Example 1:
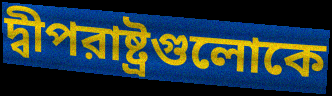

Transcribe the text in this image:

দ্বীপরাষ্ট্রগুলোকে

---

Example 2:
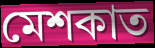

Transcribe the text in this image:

মেশকাত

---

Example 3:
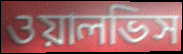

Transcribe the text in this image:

ওয়ালভিস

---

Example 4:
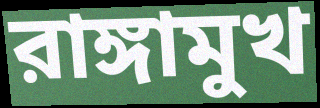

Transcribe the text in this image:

রাঙ্গামুখ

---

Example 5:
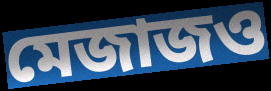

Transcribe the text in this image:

মেজাজও